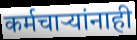
कर्मचार्‍यांनाही